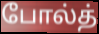
போல்த்